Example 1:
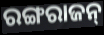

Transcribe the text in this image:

ରଙ୍ଗରାଜନ୍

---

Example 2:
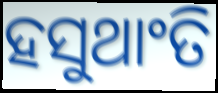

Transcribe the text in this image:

ହସୁଥାଂତି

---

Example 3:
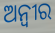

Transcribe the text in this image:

ଅନ୍ୱୀର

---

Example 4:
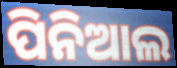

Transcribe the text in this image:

ପିନିଆଲ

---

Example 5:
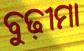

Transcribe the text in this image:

ବୁଢ଼ୀମା